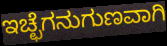
ಇಚ್ಛೆಗನುಗುಣವಾಗಿ